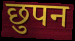
छुपन